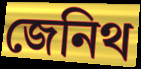
জেনিথ